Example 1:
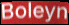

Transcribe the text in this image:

Boleyn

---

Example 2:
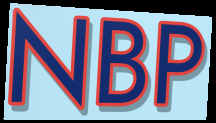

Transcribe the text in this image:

NBP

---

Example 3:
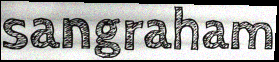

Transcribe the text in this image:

sangraham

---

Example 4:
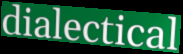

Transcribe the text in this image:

dialectical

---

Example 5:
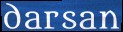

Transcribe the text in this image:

darsan